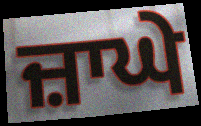
ਜ਼ਾਘੇ